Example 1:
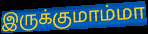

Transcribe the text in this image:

இருக்குமாம்மா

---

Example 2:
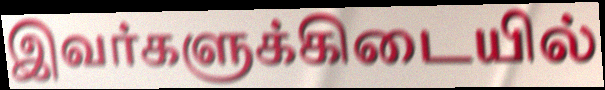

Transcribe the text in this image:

இவர்களுக்கிடையில்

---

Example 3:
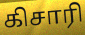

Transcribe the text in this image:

கிசாரி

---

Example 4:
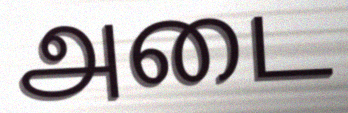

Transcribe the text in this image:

அடை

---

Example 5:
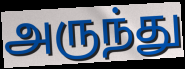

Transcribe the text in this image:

அருந்து